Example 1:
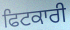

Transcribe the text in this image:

ਫਿਟਕਾਰੀ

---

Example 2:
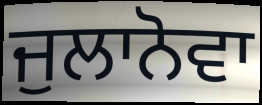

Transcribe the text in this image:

ਜੁਲਾਨੋਵਾ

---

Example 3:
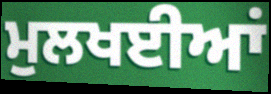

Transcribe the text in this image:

ਮੁਲਖਈਆਂ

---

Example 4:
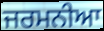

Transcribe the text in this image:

ਜਰਮਨੀਆ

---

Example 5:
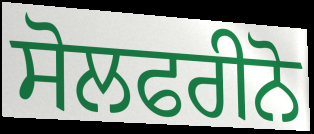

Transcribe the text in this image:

ਸੋਲਫਰੀਨੋ